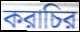
করাচির